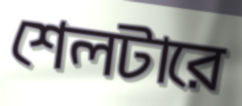
শেলটারে